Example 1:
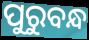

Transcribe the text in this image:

ପୁରୁବନ୍ଧ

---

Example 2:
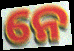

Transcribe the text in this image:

ନେ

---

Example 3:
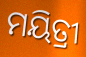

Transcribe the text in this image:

ମୟିତ୍ରୀ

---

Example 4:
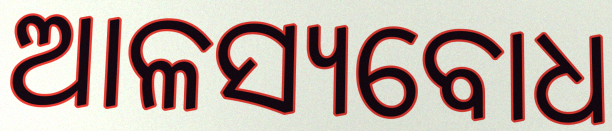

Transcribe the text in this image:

ଆଳସ୍ୟବୋଧ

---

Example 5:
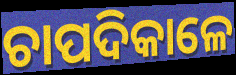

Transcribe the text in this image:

ଚାପଦିକାଳେ